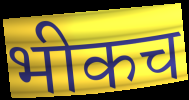
भीकच